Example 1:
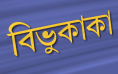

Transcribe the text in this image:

বিভুকাকা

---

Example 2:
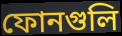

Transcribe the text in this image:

ফোনগুলি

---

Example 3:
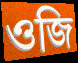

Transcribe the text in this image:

ওজি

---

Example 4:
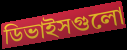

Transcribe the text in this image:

ডিভাইসগুলো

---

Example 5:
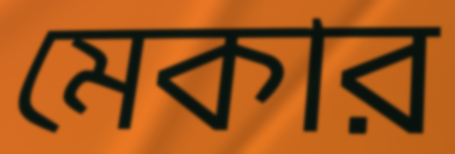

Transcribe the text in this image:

মেকার